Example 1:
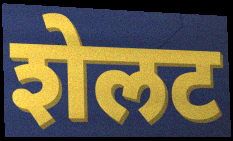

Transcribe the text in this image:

शेलट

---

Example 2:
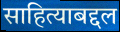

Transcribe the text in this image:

साहित्याबद्दल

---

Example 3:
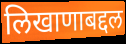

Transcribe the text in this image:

लिखाणाबद्दल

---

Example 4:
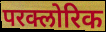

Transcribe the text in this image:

परक्लोरिक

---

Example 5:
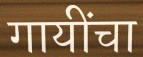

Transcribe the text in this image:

गायींचा